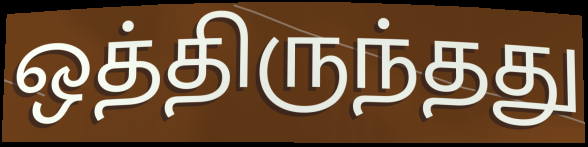
ஒத்திருந்தது